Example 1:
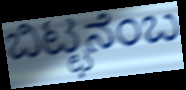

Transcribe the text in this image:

ಬಿಟ್ಟನೆಂಬ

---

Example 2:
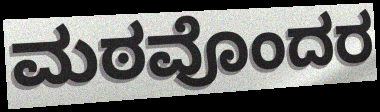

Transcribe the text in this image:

ಮಠವೊಂದರ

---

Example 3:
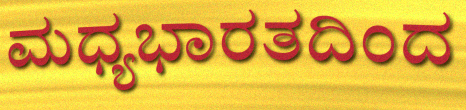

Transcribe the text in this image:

ಮಧ್ಯಭಾರತದಿಂದ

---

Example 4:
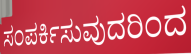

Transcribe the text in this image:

ಸಂಪರ್ಕಿಸುವುದರಿಂದ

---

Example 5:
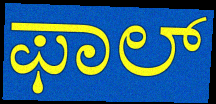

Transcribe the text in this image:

ಫಾಲ್